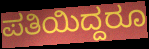
ಪತಿಯಿದ್ದರೂ